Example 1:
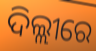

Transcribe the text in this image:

ଦିଲ୍ଲୀରେ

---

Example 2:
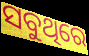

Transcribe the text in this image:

ସବୁଥିରେ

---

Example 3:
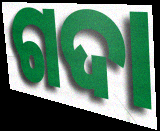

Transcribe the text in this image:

ଗଦା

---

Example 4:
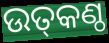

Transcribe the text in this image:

ଉତ୍‌କଣ୍ଠ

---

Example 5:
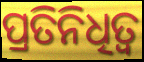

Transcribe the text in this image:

ପ୍ରତିନିଧିତ୍ବ